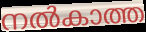
നൽകാത്ത